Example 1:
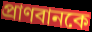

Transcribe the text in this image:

প্রাণবানকে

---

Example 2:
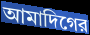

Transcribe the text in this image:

আমাদিগের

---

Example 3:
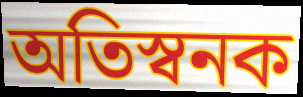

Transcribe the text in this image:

অতিস্বনক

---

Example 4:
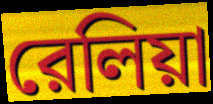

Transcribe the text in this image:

রেলিয়া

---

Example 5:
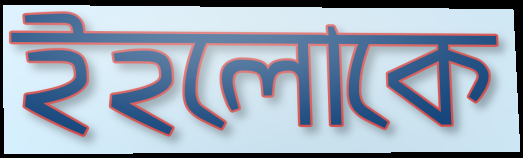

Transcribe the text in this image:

ইহলোকে